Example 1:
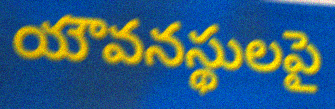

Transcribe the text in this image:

యౌవనస్థులపై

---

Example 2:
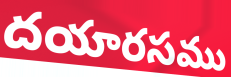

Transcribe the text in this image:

దయారసము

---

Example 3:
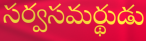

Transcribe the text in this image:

సర్వసమర్థుడు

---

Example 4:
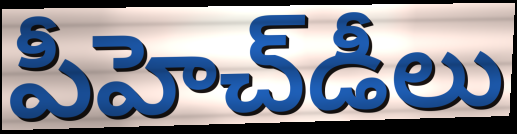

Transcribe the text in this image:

పీహెచ్‌డీలు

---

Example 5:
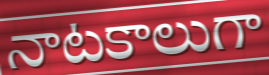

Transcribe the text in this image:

నాటకాలుగా